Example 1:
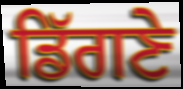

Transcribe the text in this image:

ਡਿੱਗਣੇ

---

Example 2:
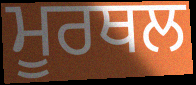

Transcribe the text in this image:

ਮੂਰਥਲ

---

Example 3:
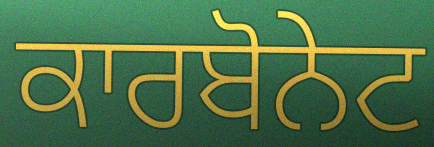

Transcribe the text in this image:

ਕਾਰਬੋਨੇਟ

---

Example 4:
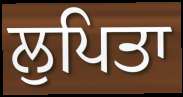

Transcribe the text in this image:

ਲੁਪਿਤਾ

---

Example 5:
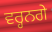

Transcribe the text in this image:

ਵਰ੍ਹਨਗੇ